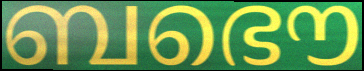
ബഭൌ